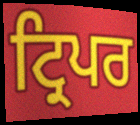
ਟ੍ਰਿਪਰ